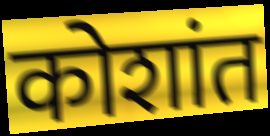
कोशांत